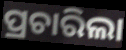
ପ୍ରଚାରିଲା